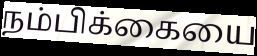
நம்பிக்கையை